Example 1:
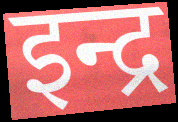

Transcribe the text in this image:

इन्द्र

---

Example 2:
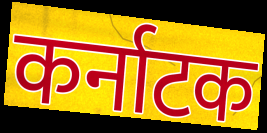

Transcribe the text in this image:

कर्नाटक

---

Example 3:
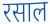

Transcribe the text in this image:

रसाल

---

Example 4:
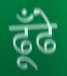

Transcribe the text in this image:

ढूँढे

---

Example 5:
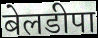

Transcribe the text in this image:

बेलडीपा